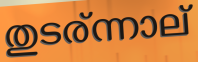
തുടര്ന്നാല്